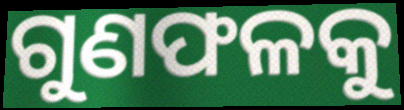
ଗୁଣଫଳକୁ